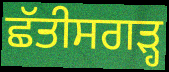
ਛੱਤੀਸਗਡ਼੍ਹ